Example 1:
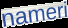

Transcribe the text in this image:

nameri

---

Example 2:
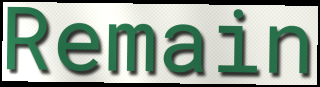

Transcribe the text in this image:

Remain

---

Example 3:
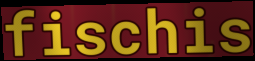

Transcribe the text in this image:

fischis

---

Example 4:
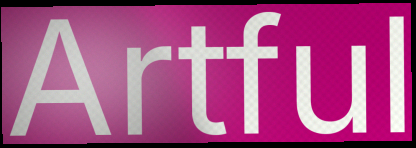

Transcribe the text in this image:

Artful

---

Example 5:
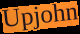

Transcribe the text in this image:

Upjohn